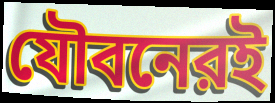
যৌবনেরই